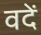
वदें